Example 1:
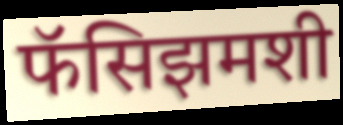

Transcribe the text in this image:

फॅसिझमशी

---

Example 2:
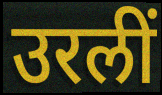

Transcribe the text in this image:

उरलीं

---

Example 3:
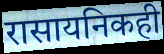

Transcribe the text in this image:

रासायनिकही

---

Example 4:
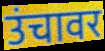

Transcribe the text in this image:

उंचावर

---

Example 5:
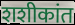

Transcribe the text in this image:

शशीकांत